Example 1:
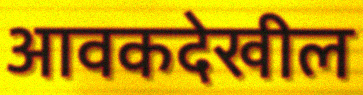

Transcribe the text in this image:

आवकदेखील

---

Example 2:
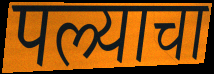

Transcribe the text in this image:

पल्याचा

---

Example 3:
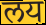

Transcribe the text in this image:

लय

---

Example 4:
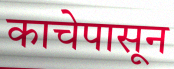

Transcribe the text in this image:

काचेपासून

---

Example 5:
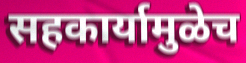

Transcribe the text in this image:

सहकार्यामुळेच